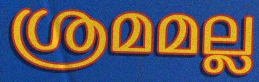
ശ്രമമല്ല